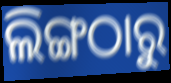
ଲିଙ୍ଗଠାରୁ